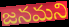
జనమని